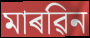
মাৰৱিন